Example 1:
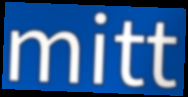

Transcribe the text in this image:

mitt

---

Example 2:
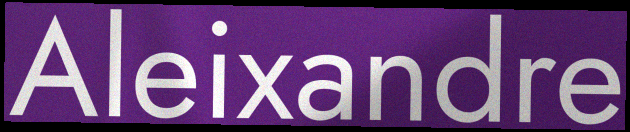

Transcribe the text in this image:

Aleixandre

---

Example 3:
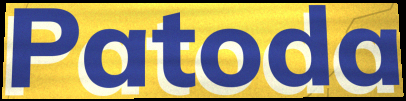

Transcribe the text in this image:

Patoda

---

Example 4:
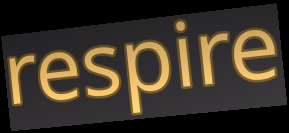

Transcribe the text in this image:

respire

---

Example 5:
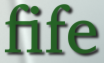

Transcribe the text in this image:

fife